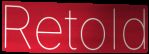
Retold